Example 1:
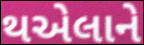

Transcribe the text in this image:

થએલાને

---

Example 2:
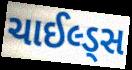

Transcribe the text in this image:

ચાઈલ્ડ્સ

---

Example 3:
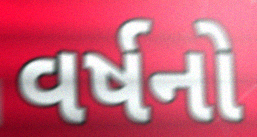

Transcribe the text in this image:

વર્ષનો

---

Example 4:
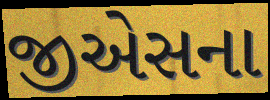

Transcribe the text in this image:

જીએસના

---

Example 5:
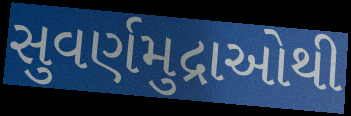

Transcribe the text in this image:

સુવર્ણમુદ્રાઓથી